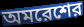
অমরেশের